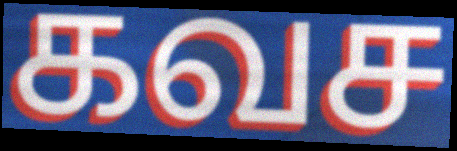
கவச